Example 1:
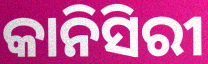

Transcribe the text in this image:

କାନିସିରୀ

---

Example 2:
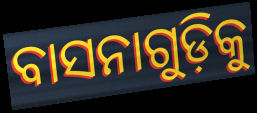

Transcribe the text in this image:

ବାସନାଗୁଡ଼ିକୁ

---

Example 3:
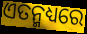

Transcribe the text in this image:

ଏତନ୍ମଧ୍ୟରେ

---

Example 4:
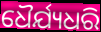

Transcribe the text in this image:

ଧୈର୍ଯ୍ୟଧରି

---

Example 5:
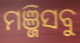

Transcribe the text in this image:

ମଞ୍ଜିସବୁ